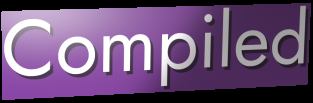
Compiled